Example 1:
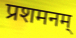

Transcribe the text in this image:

प्रशमनम्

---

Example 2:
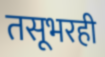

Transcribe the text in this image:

तसूभरही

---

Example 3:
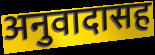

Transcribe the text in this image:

अनुवादासह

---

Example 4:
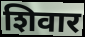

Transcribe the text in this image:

शिवार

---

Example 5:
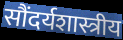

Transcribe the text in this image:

सौंदर्यशास्त्रीय